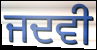
ਜਦਵੀ